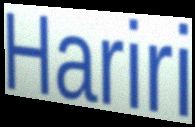
Hariri